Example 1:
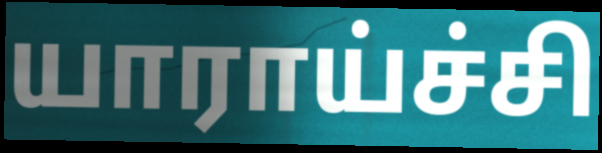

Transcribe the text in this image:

யாராய்ச்சி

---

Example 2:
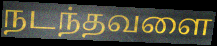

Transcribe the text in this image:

நடந்தவளை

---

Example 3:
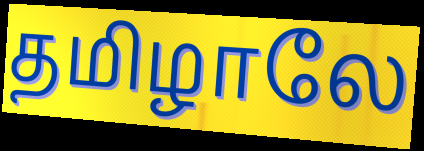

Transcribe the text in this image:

தமிழாலே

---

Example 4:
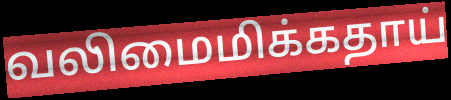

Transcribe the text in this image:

வலிமைமிக்கதாய்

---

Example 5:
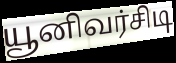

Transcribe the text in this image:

யூனிவர்சிடி